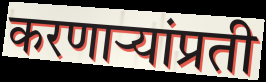
करणाऱ्यांप्रती